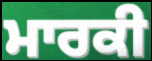
ਮਾਰਕੀ